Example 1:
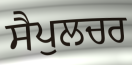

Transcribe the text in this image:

ਸੈਪੁਲਚਰ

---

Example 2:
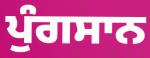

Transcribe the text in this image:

ਪੁੰਗਸਾਨ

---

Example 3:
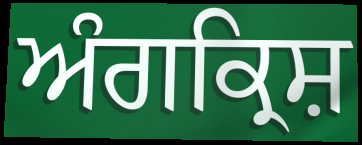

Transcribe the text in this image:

ਅੰਗਕ੍ਰਿਸ਼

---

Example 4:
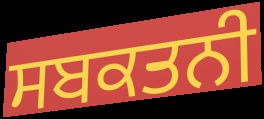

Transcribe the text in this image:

ਸਬਕਤਨੀ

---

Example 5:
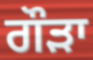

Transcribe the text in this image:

ਗੌੜਾ